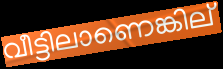
വീട്ടിലാണെങ്കില്